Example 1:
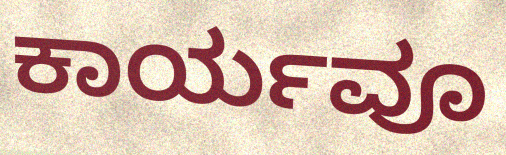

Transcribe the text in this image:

ಕಾರ್ಯವೂ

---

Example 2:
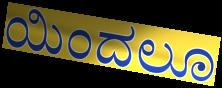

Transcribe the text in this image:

ಯಿಂದಲೂ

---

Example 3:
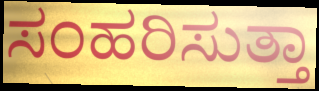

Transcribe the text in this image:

ಸಂಹರಿಸುತ್ತಾ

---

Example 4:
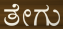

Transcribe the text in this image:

ತೇಗು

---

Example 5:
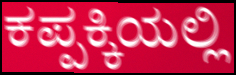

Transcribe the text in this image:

ಕಪ್ಪಕ್ಕಿಯಲ್ಲಿ